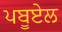
ਪਬੂਏਲ